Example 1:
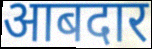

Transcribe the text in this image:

आबदार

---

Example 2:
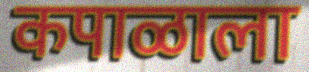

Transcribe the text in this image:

कपाळाला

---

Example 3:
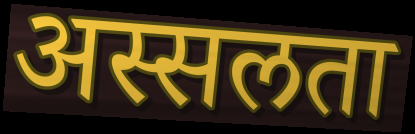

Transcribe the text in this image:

अस्सलता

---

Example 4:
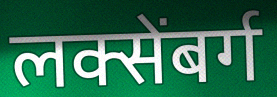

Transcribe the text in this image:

लक्सेंबर्ग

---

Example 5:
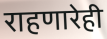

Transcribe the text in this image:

राहणारेही